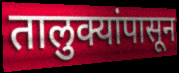
तालुक्यांपासून